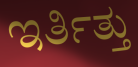
ಇರ್ತಿತ್ತು